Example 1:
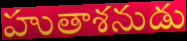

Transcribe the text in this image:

హుతాశనుడు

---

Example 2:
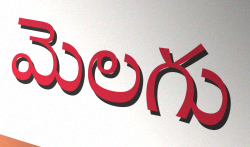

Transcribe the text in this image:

మెలగు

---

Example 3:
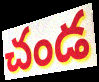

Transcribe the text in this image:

చండ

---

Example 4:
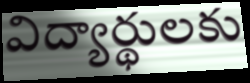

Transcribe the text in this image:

విద్యార్థులకు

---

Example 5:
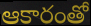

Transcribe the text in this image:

ఆకారంతో